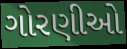
ગોરણીઓ